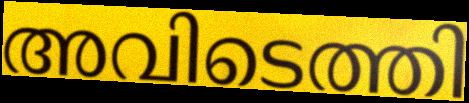
അവിടെത്തി